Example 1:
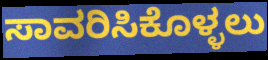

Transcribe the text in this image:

ಸಾವರಿಸಿಕೊಳ್ಳಲು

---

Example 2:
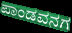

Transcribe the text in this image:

ಪಾಂಡವನಗ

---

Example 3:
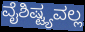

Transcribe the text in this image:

ವೈಶಿಷ್ಟ್ಯವಲ್ಲ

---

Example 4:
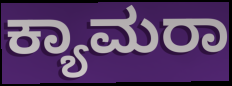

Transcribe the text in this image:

ಕ್ಯಾಮರಾ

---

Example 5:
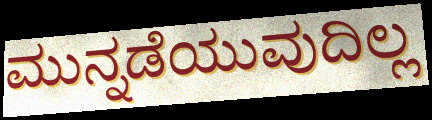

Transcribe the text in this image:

ಮುನ್ನಡೆಯುವುದಿಲ್ಲ